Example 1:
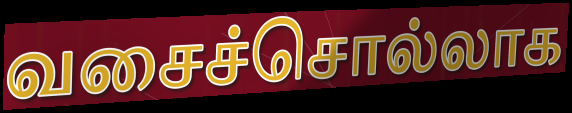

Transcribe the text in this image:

வசைச்சொல்லாக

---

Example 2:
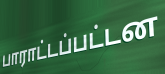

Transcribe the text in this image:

பாராட்டப்பட்டன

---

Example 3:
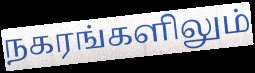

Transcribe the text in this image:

நகரங்களிலும்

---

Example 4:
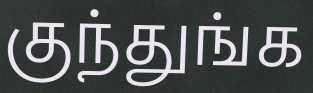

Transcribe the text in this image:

குந்துங்க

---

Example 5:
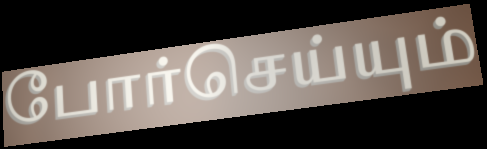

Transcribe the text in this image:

போர்செய்யும்